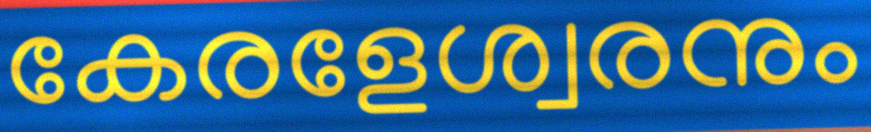
കേരളേശ്വരനും